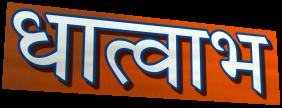
धात्वाभ